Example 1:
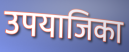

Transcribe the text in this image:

उपयाजिका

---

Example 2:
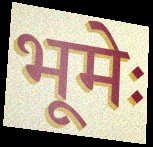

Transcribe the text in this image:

भूमेः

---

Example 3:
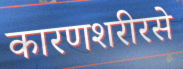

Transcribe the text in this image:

कारणशरीरसे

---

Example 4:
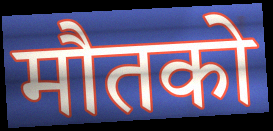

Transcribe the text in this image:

मौतको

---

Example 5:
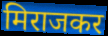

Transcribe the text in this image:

मिराजकर